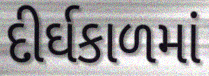
દીર્ઘકાળમાં